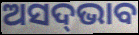
ଅସଦ୍‌ଭାବ